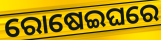
ରୋଷେଇଘରେ